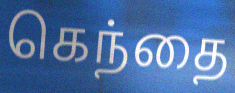
கெந்தை